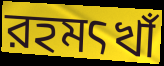
রহমৎখাঁ